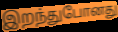
இறந்துபோனது